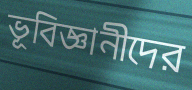
ভূবিজ্ঞানীদের